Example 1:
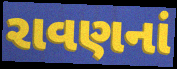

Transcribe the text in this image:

રાવણનાં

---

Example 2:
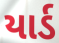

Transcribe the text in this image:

યાર્ડ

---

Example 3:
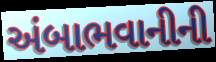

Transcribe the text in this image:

અંબાભવાનીની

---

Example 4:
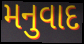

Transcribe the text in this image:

મનુવાદ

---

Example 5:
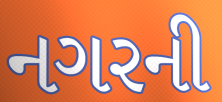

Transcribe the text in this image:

નગરની